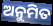
ଅନୁମିତ